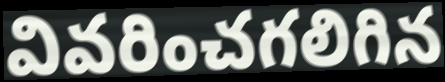
వివరించగలిగిన